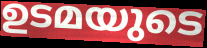
ഉടമയുടെ